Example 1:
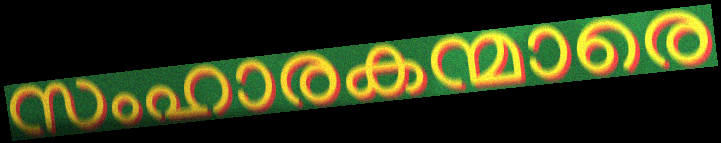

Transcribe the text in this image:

സംഹാരകന്മാരെ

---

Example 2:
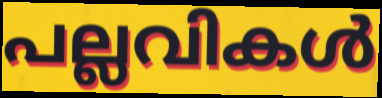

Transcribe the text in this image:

പല്ലവികൾ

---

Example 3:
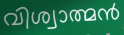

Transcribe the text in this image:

വിശ്വാത്മൻ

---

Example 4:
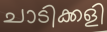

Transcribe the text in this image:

ചാടിക്കളി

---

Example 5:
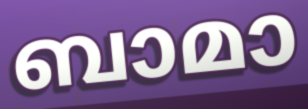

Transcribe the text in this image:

ബാമാ